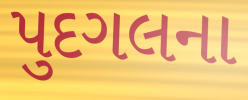
પુદગલના